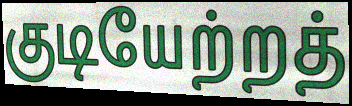
குடியேற்றத்